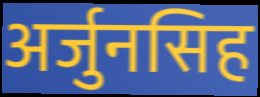
अर्जुनसिह